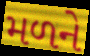
મળને